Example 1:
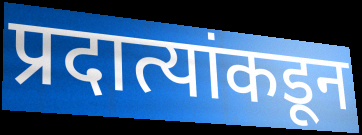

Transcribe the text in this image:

प्रदात्यांकडून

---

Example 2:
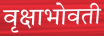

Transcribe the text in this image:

वृक्षाभोवती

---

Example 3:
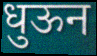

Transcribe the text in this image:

धुऊन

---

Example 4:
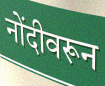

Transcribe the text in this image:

नोंदीवरून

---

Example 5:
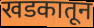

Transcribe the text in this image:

खडकातून